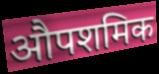
औपशमिक